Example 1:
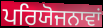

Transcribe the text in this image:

ਪਰਿਯੋਜਨਾਵਾਂ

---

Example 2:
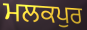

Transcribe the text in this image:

ਮਲਕਪੁਰ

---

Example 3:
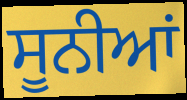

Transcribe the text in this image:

ਸੂਨੀਆਂ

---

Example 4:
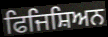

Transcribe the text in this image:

ਫਿਜਿਸ਼ਿਅਨ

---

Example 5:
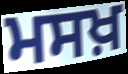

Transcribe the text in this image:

ਮਸਖ਼